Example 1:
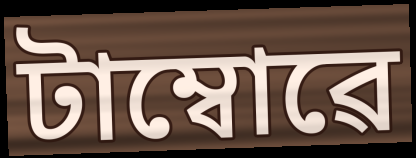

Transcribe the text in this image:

টাম্বোৱে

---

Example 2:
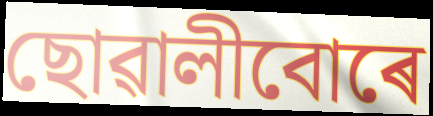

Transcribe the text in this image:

ছোৱালীবোৰে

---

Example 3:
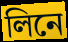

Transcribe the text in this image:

লিনে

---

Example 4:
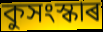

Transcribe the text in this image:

কুসংস্কাৰ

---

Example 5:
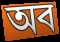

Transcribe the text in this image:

অব